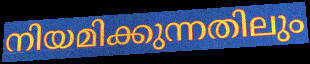
നിയമിക്കുന്നതിലും